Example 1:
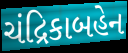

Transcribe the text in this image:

ચંદ્રિકાબહેન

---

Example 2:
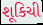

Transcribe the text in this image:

શૂકિચી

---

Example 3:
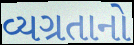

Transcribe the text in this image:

વ્યગ્રતાનો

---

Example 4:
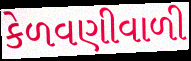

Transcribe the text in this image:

કેળવણીવાળી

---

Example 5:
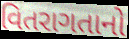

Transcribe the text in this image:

વિતરાગતાનો